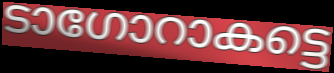
ടാഗോറാകട്ടെ